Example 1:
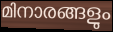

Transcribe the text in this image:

മിനാരങ്ങളും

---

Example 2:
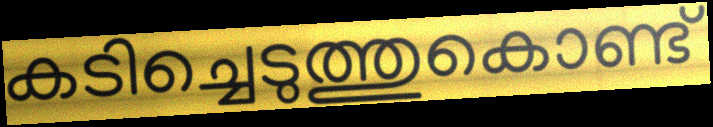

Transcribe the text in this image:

കടിച്ചെടുത്തുകൊണ്ട്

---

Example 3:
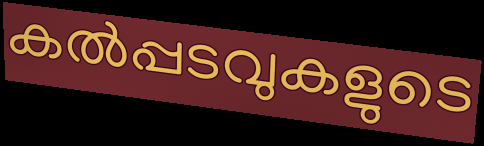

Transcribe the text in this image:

കൽപ്പടവുകളുടെ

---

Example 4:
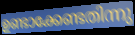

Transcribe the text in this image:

ഉണ്ടാക്കേണ്ടതിന്നു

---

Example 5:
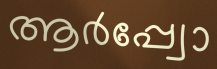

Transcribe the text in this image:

ആർപ്പ്വോ